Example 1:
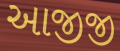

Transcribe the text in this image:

આજીજી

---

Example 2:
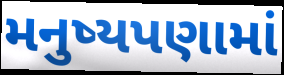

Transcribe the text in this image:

મનુષ્યપણામાં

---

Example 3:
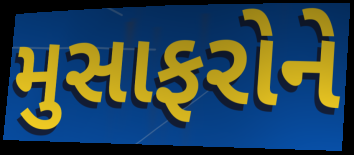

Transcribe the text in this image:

મુસાફરોને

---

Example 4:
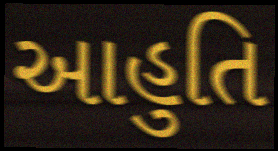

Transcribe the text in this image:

આહુતિ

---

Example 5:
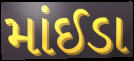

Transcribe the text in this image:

માંઈડા